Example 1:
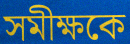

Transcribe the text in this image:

সমীক্ষকে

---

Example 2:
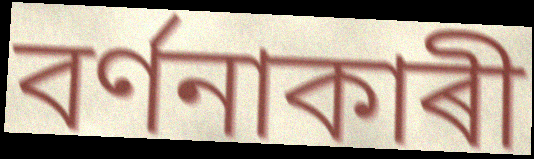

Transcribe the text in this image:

বৰ্ণনাকাৰী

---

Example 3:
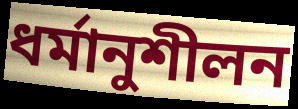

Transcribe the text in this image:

ধৰ্মানুশীলন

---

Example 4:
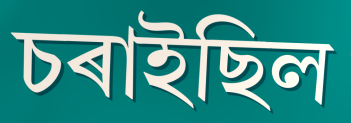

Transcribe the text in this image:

চৰাইছিল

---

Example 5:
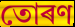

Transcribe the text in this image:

তোৰণ